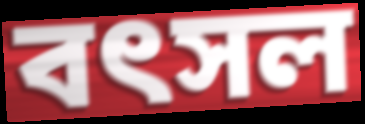
বৎসল